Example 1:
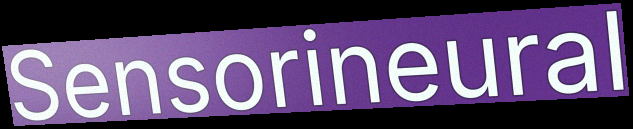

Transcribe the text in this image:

Sensorineural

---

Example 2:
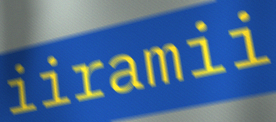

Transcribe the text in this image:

iiramii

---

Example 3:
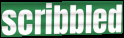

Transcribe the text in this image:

scribbled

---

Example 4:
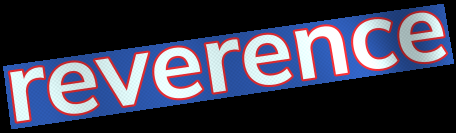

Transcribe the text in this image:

reverence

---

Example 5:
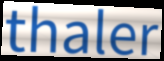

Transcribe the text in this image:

thaler